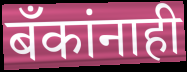
बँकांनाही